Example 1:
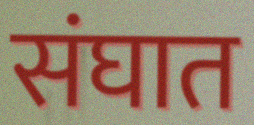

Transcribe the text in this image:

संघात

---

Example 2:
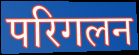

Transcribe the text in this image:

परिगलन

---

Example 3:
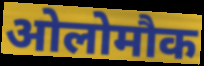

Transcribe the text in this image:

ओलोमौक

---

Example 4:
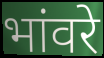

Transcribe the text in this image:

भांवरे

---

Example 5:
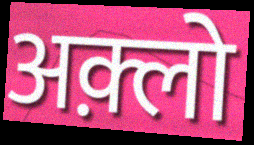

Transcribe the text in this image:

अक़्लो